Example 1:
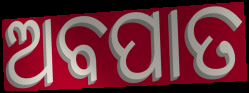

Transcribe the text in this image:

ଅବପାତ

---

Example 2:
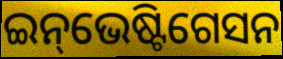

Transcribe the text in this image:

ଇନ୍‌ଭେଷ୍ଟିଗେସନ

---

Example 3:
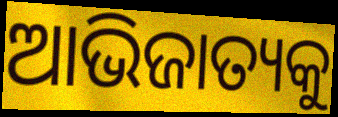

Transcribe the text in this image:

ଆଭିଜାତ୍ୟକୁ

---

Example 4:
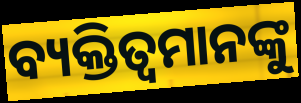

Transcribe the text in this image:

ବ୍ୟକ୍ତିତ୍ବମାନଙ୍କୁ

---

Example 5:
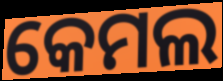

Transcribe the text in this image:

କେମଲ